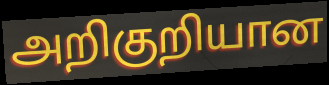
அறிகுறியான